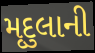
મૃદુલાની